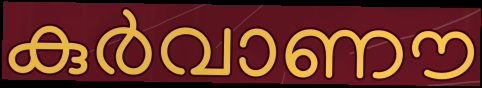
കുർവാണൗ